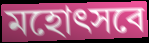
মহোৎসবে